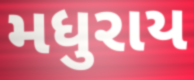
મધુરાય